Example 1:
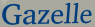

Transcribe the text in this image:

Gazelle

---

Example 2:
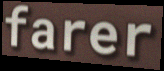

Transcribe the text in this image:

farer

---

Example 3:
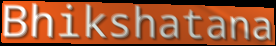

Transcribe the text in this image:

Bhikshatana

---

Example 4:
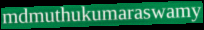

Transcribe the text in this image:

mdmuthukumaraswamy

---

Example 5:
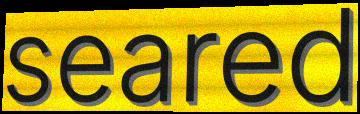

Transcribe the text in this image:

seared